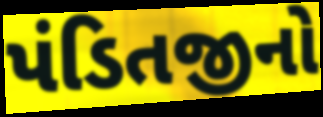
પંડિતજીનો